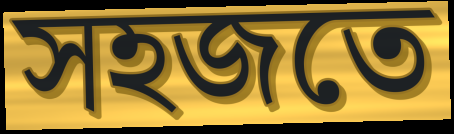
সহজতে